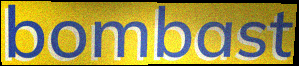
bombast